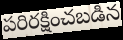
పరిరక్షించబడిన